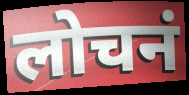
लोचनं